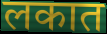
लकात